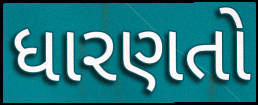
ધારણતો